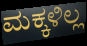
ಮಕ್ಕಳಿಲ್ಲ